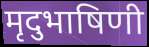
मृदुभाषिणी